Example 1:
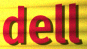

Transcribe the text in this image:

dell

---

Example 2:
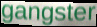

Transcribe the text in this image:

gangster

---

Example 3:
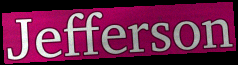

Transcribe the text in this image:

Jefferson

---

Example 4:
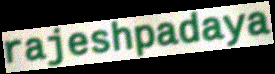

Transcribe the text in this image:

rajeshpadaya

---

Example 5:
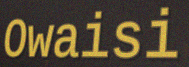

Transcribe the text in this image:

Owaisi